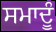
ਸਮਾਦੂੰ